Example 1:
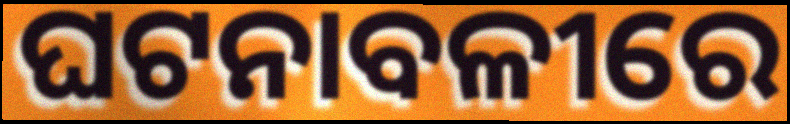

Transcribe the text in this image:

ଘଟନାବଳୀରେ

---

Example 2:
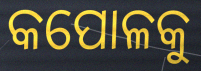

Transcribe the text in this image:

କପୋଳକୁ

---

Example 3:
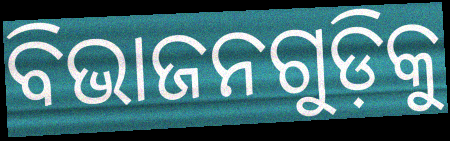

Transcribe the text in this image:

ବିଭାଜନଗୁଡ଼ିକୁ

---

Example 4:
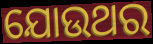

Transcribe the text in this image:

ଯୋଉଥର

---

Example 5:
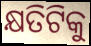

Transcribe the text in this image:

କ୍ଷତିଟିକୁ